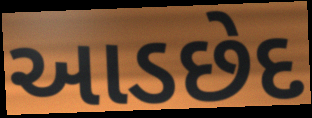
આડછેદ